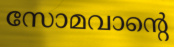
സോമവാന്റെ